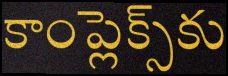
కాంప్లెక్స్‌కు